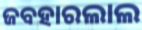
ଜବହାରଲାଲ